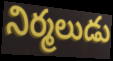
నిర్మలుడు